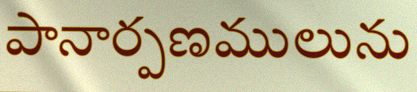
పానార్పణములును